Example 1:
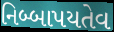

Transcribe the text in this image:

નિબ્બાપયતેવ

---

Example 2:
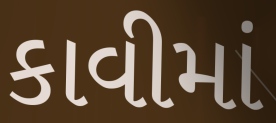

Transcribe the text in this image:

કાવીમાં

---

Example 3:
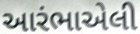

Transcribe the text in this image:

આરંભાએલી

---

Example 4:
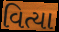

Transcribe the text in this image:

વિત્યા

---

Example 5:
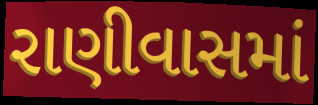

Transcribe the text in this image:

રાણીવાસમાં